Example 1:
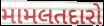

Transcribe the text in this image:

મામલતદારો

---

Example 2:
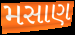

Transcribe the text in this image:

મસાણ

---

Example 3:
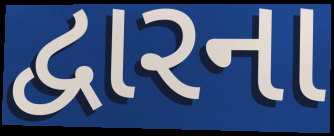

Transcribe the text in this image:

દ્વારના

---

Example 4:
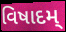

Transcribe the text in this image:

વિષાદમ્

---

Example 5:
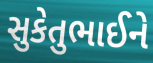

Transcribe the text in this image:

સુકેતુભાઈને